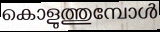
കൊളുത്തുമ്പോൾ